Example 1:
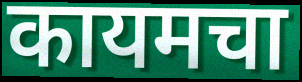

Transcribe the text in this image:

कायमचा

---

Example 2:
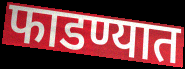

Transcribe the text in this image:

फाडण्यात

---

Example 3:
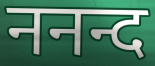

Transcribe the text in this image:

ननन्द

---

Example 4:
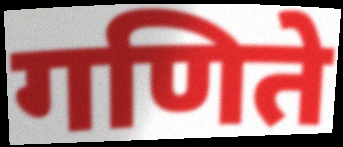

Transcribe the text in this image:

गणिते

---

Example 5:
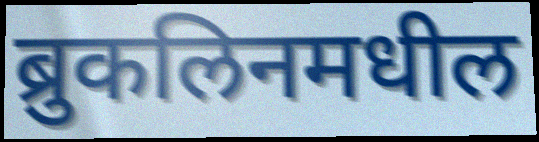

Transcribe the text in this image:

ब्रुकलिनमधील